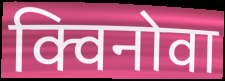
क्विनोवा